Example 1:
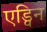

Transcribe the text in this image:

एड्विन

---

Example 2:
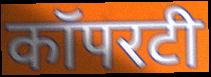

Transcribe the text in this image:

कॉपरटी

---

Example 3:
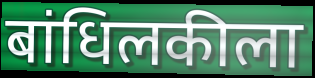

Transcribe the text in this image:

बांधिलकीला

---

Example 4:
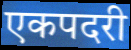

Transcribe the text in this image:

एकपदरी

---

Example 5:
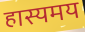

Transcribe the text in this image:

हास्यमय